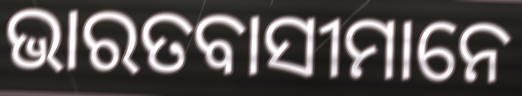
ଭାରତବାସୀମାନେ